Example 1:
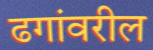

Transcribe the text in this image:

ढगांवरील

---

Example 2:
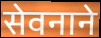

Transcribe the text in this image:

सेवनाने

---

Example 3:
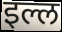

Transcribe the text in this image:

इल्ल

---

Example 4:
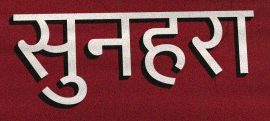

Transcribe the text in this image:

सुनहरा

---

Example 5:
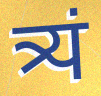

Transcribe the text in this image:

त्र्यं